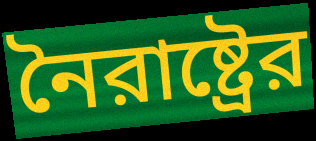
নৈরাষ্ট্রের